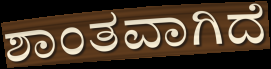
ಶಾಂತವಾಗಿದೆ